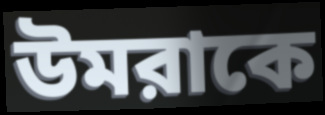
উমরাকে